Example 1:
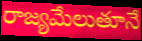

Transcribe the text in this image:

రాజ్యమేలుతూనే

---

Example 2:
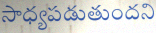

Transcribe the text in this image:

సాధ్యపడుతుందని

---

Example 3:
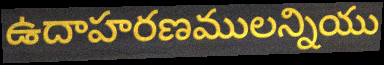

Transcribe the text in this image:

ఉదాహరణములన్నియు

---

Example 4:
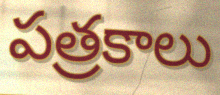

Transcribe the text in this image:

పత్రకాలు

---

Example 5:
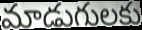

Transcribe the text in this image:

మాడుగులకు